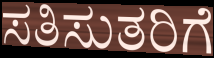
ಸತಿಸುತರಿಗೆ